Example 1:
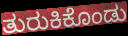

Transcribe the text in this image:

ತುರುಕಿಕೊಂಡು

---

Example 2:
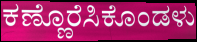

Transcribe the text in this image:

ಕಣ್ಣೊರೆಸಿಕೊಂಡಳು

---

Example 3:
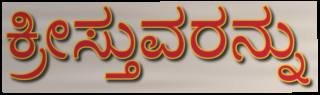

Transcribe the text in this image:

ಕ್ರೀಸ್ತುವರನ್ನು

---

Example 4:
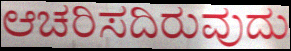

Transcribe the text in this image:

ಆಚರಿಸದಿರುವುದು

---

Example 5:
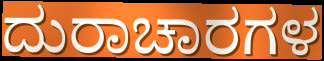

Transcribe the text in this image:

ದುರಾಚಾರಗಳ